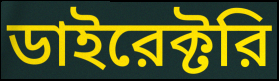
ডাইরেক্টরি